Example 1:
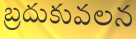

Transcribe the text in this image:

బ్రదుకువలన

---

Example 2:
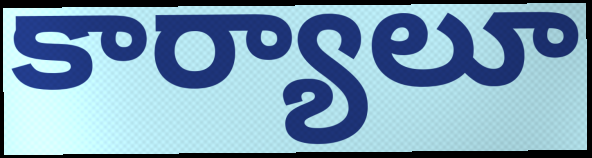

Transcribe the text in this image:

కార్యాలూ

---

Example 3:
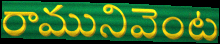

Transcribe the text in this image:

రామునివెంట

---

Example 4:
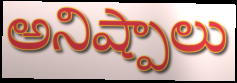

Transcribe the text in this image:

అనిష్పాలు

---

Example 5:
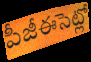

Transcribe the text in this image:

పీజీఈసెట్లో